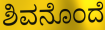
ಶಿವನೊಂದೆ